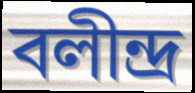
বলীন্দ্ৰ